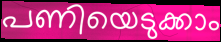
പണിയെടുക്കാം